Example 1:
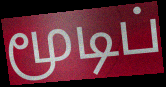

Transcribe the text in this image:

மூடிப்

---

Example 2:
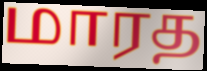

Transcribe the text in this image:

மாரத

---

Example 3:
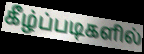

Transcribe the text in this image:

கீழ்ப்படிகளில்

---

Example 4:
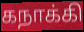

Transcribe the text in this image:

கநாக்கி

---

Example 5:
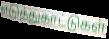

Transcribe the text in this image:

எடுத்துகாட்டுகள்